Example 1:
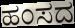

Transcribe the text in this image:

ಹಂಸದ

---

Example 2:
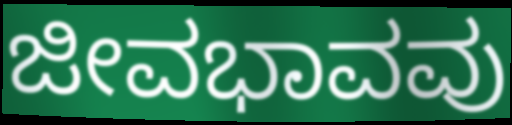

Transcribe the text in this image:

ಜೀವಭಾವವು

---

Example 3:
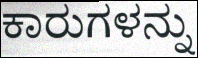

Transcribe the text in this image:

ಕಾರುಗಳನ್ನು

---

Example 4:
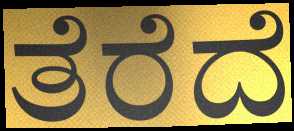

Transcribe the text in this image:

ತೆರೆದೆ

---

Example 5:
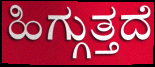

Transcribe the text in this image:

ಹಿಗ್ಗುತ್ತದೆ